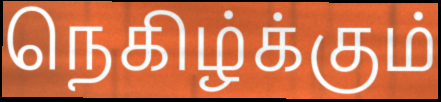
நெகிழ்க்கும்